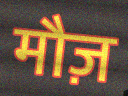
मौज़